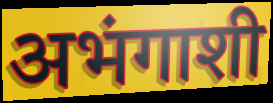
अभंगाशी